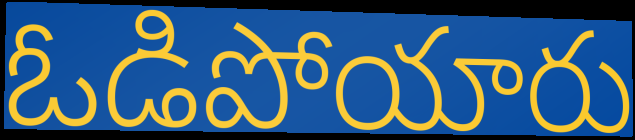
ఓడిపోయారు